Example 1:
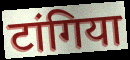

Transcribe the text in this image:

टांगिया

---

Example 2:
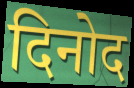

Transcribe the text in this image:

दिनोद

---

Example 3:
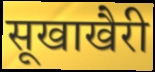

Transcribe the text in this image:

सूखाखैरी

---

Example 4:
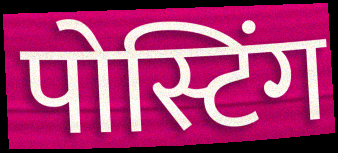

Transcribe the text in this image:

पोस्टिंग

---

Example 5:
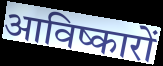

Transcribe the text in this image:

आविष्कारों